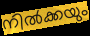
നിൽക്കയും